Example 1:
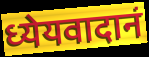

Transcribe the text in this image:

ध्येयवादानं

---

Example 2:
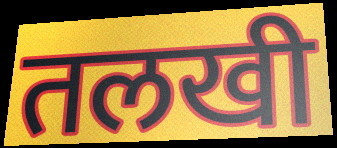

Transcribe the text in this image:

तलखी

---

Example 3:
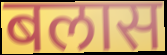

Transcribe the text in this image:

बलास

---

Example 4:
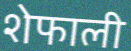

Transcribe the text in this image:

शेफाली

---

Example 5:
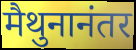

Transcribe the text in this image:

मैथुनानंतर